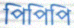
পিপিপি